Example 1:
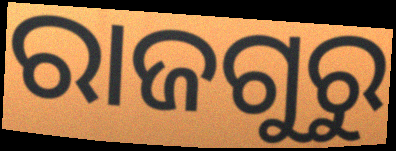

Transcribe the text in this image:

ରାଜଗୁରୁ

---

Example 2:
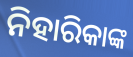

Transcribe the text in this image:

ନିହାରିକାଙ୍କ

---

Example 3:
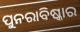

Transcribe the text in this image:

ପୁନରାବିଷ୍କାର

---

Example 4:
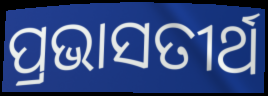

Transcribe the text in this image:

ପ୍ରଭାସତୀର୍ଥ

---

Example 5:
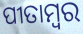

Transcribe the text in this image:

ପୀତାମ୍ବର